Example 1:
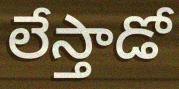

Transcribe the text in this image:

లేస్తాడో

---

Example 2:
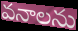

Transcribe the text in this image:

వనాలను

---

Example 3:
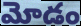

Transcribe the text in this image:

మోడం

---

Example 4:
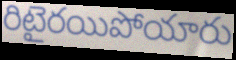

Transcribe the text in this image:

రిటైరయిపోయారు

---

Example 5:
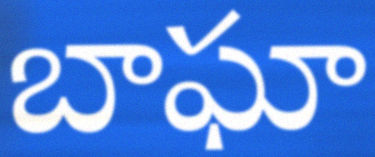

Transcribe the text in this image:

బాఘా